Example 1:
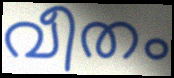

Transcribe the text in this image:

വീതം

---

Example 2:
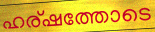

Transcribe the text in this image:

ഹര്ഷത്തോടെ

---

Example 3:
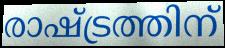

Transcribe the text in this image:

രാഷ്ട്രത്തിന്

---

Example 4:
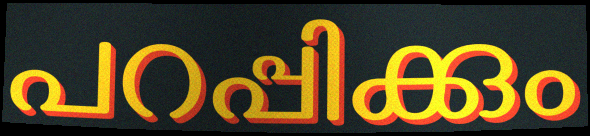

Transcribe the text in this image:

പറപ്പിക്കും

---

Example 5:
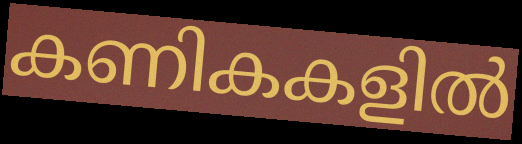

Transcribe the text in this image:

കണികകളിൽ